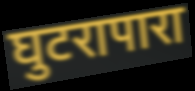
घुटरापारा